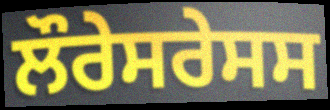
ਲੌਰੇਸਰੇਸਸ